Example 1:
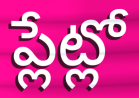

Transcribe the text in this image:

ప్లేట్లో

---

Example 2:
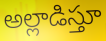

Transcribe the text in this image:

అల్లాడిస్తూ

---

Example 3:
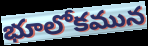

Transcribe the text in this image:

భూలోకమున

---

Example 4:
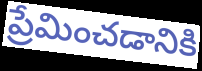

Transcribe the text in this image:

ప్రేమించడానికి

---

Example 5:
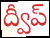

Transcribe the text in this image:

ద్వీప్